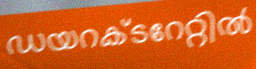
ഡയറക്ടറേറ്റിൽ